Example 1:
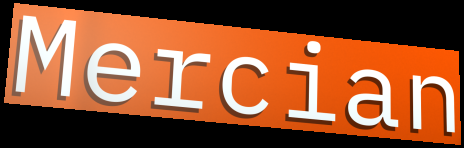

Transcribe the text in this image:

Mercian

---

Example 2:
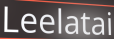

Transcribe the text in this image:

Leelatai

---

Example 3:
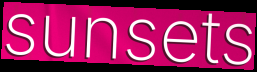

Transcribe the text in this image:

sunsets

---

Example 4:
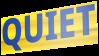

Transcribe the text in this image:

QUIET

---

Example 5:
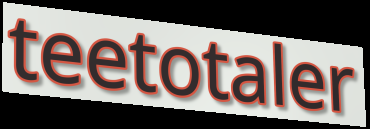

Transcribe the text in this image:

teetotaler